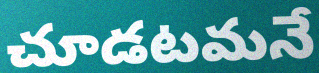
చూడటమనే